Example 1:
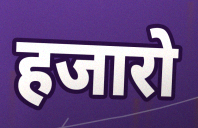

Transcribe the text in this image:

हजारो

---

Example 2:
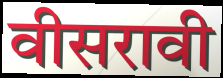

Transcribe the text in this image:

वीसरावी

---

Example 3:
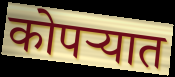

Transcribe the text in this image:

कोपर्‍यात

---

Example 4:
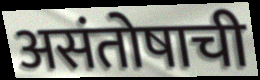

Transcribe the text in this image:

असंतोषाची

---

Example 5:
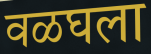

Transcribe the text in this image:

वळघला